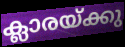
ക്ലാരയ്ക്കു